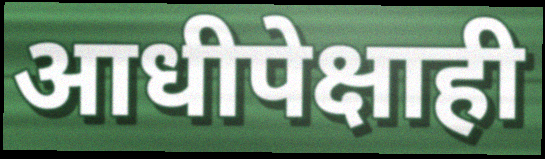
आधीपेक्षाही